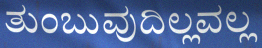
ತುಂಬುವುದಿಲ್ಲವಲ್ಲ